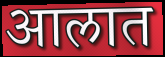
आलात